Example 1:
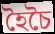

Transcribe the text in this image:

হৈচৈ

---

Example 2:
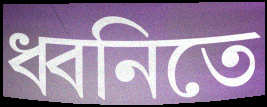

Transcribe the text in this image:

ধ্বনিতে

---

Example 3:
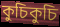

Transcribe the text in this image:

কুচিকুচি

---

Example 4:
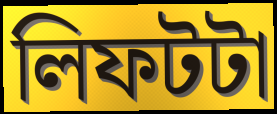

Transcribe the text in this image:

লিফটটা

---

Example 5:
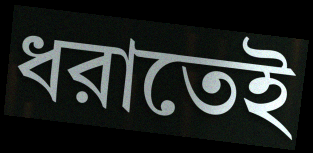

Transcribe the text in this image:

ধরাতেই